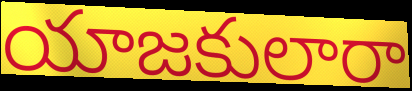
యాజకులారా